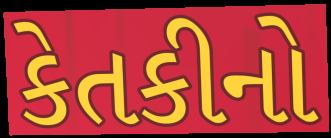
કેતકીનો